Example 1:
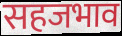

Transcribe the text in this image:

सहजभाव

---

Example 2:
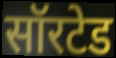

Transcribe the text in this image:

सॉरटेड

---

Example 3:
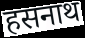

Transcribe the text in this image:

हसनाथ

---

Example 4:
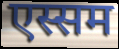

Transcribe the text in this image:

एस्सम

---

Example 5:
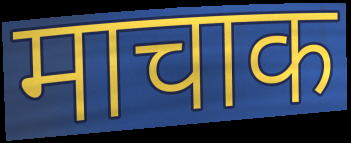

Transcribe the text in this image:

माचाक